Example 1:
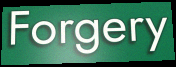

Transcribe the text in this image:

Forgery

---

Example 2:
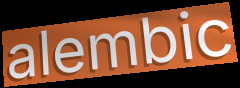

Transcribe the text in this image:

alembic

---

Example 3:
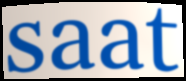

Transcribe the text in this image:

saat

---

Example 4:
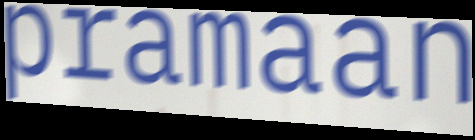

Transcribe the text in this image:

pramaan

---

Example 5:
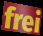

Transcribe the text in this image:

frei